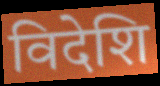
विदेशि